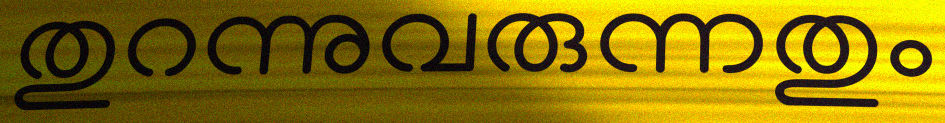
തുറന്നുവരുന്നതും